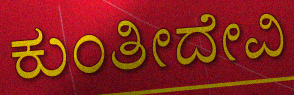
ಕುಂತೀದೇವಿ